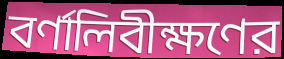
বর্ণালিবীক্ষণের